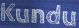
Kundu